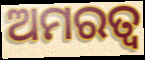
ଅମରତ୍ବ